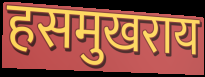
हसमुखराय